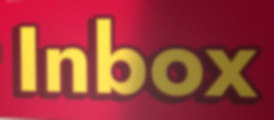
Inbox